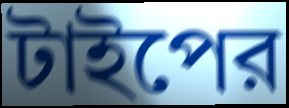
টাইপের